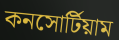
কনসোর্টিয়াম